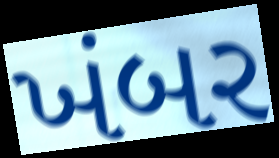
ખંબર